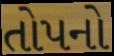
તોપનો